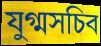
যুগ্মসচিব